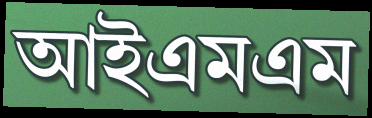
আইএমএম